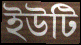
ইউটি